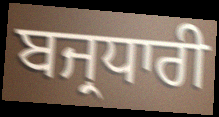
ਬਜ੍ਰਧਾਰੀ